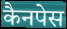
कैनपेस